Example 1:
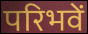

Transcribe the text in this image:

परिभवें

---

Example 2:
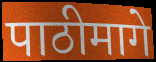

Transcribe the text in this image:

पाठीमागे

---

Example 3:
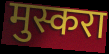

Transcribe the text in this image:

मुस्करा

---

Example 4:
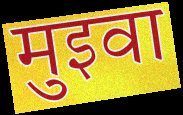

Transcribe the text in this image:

मुइवा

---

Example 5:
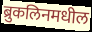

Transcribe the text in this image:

ब्रुकलिनमधील